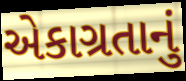
એકાગ્રતાનું